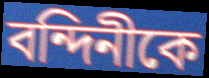
বন্দিনীকে